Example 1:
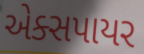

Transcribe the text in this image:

એક્સપાયર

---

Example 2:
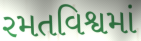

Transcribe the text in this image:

રમતવિશ્વમાં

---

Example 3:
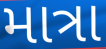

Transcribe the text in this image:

માત્રા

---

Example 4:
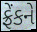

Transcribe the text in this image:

ફ્રેંકને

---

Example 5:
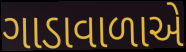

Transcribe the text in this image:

ગાડાવાળાએ